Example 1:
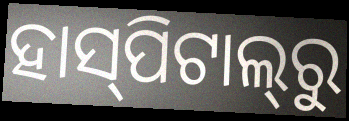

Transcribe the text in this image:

ହାସ୍‍ପିଟାଲ୍‍ରୁ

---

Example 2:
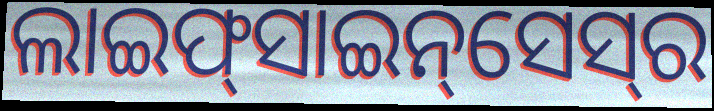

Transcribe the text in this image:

ଲାଇଫ୍‌ସାଇନ୍‌ସେସ୍‌ର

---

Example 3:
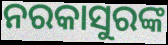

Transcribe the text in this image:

ନରକାସୁରଙ୍କ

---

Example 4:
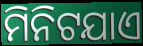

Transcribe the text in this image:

ମିନିଟଯାଏ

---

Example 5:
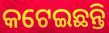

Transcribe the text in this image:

କଟେଇଛନ୍ତି